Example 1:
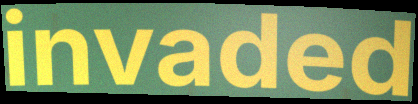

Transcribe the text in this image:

invaded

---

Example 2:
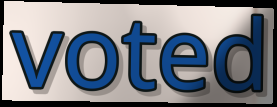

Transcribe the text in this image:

voted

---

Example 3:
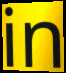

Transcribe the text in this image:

in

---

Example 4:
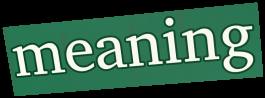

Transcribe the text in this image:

meaning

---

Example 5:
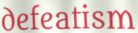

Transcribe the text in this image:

defeatism